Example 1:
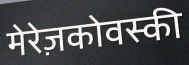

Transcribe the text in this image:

मेरेज़कोवस्की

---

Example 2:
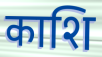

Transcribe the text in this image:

काशि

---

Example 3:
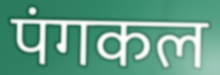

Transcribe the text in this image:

पंगकल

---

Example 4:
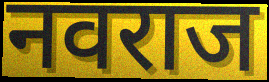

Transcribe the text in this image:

नवराज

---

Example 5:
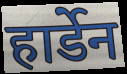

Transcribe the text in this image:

हार्डेन